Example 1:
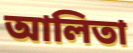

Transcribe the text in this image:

আলিতা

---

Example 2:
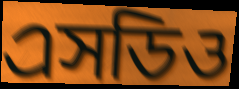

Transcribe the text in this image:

এসডিও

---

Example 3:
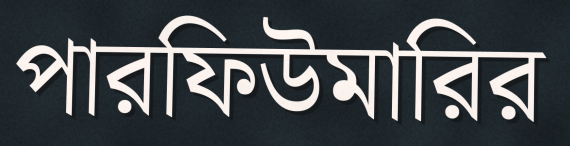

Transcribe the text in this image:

পারফিউমারির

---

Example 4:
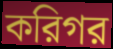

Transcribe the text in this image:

করিগর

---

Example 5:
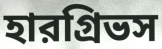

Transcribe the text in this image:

হারগ্রিভস